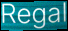
Regal